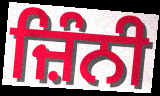
ਜ਼ਿੰਨੀ